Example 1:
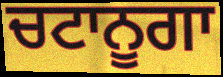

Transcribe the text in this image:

ਚਟਾਨੂਗਾ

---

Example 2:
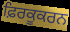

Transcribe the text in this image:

ਫ਼ਿਰਕੂਕਰਨ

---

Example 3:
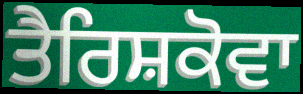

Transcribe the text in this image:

ਤੈਰਿਸ਼ਕੋਵਾ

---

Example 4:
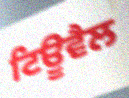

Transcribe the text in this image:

ਟਿਊਵੈਲ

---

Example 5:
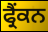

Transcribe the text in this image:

ਫ੍ਰੈਂਕਨ